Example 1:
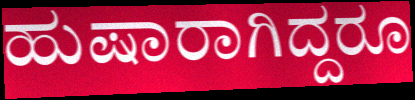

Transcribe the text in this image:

ಹುಷಾರಾಗಿದ್ದರೂ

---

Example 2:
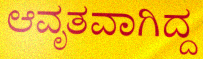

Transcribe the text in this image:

ಆವೃತವಾಗಿದ್ದ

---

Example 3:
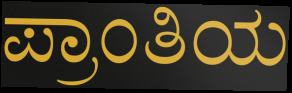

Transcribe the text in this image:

ಪ್ರಾಂತಿಯ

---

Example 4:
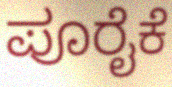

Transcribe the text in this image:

ಪೂರೈಕೆ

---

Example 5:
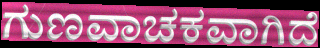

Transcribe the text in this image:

ಗುಣವಾಚಕವಾಗಿದೆ